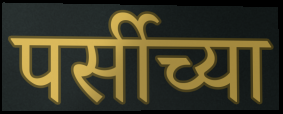
पर्सीच्या